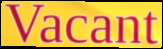
Vacant